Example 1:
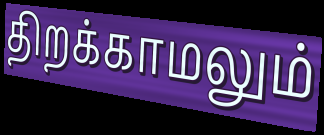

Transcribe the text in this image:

திறக்காமலும்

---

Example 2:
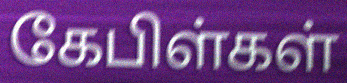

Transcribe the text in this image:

கேபிள்கள்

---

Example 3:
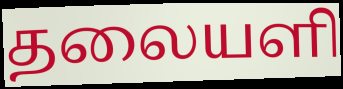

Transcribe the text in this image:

தலையளி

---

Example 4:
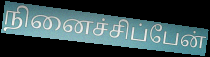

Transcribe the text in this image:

நினைச்சிப்பேன்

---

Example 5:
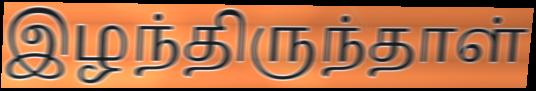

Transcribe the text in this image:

இழந்திருந்தாள்